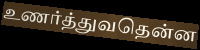
உணர்த்துவதென்ன